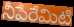
నీపేరేమిటి